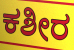
ಕಶೀರ